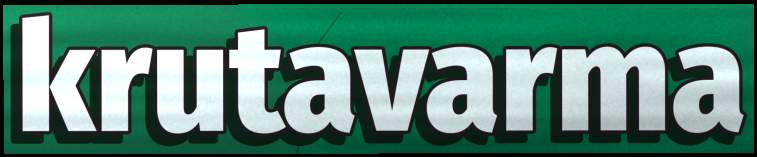
krutavarma